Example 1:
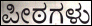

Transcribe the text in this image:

ಪೀಠಗಳು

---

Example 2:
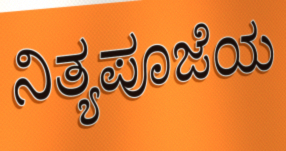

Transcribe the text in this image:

ನಿತ್ಯಪೂಜೆಯ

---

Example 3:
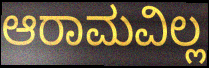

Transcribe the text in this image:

ಆರಾಮವಿಲ್ಲ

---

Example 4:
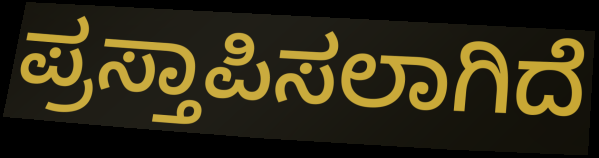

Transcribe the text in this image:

ಪ್ರಸ್ತಾಪಿಸಲಾಗಿದೆ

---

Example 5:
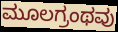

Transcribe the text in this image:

ಮೂಲಗ್ರಂಥವು